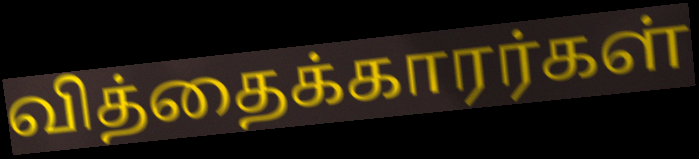
வித்தைக்காரர்கள்